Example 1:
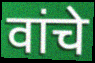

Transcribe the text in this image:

वांचे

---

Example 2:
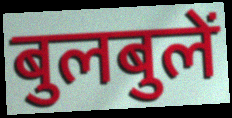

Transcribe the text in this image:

बुलबुलें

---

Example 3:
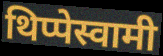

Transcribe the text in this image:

थिप्पेस्वामी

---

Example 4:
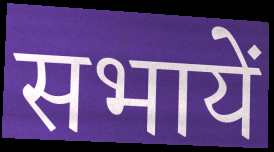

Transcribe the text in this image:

सभायें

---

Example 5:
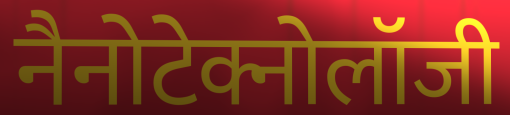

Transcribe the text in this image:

नैनोटेक्नोलॉजी